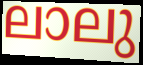
ലാലു